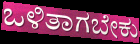
ಒಳಿತಾಗಬೇಕು